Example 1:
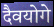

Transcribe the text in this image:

दैवयोगे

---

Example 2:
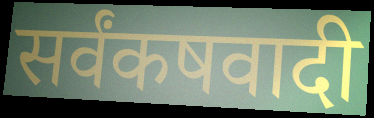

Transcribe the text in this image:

सर्वंकषवादी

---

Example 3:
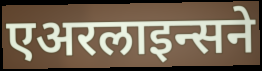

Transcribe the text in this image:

एअरलाइन्सने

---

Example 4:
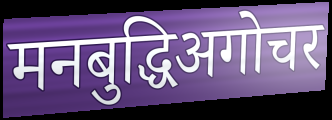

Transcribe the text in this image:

मनबुद्धिअगोचर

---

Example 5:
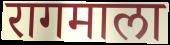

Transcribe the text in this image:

रागमाला